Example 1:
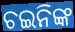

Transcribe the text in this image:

ଚଇନିଙ୍କ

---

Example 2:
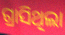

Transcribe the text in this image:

ଗ୍ରାସିଥିଲା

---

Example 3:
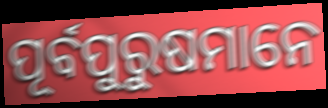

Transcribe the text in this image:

ପୂର୍ବପୁରୁଷମାନେ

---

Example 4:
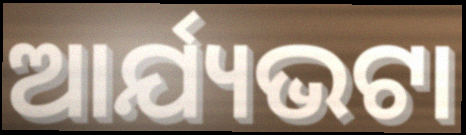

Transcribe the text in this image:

ଆର୍ଯ୍ୟଭଟା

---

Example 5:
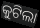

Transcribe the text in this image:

କୁଟିଲା